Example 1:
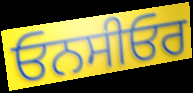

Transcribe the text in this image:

ਓਨਸੀਓਰ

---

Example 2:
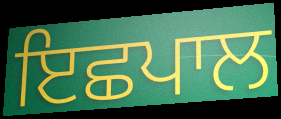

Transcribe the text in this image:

ਇਛਪਾਲ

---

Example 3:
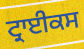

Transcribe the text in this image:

ਟ੍ਰਾਈਕਸ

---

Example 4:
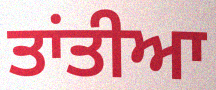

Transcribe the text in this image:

ਤਾਂਤੀਆ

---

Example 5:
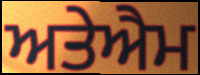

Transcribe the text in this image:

ਅਤੇਐਮ